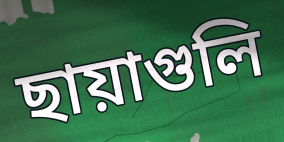
ছায়াগুলি